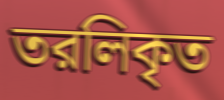
তরলিকৃত